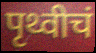
पृथ्वीचं